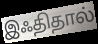
இஃதிதால்